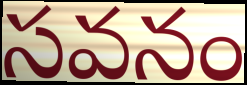
సవనం